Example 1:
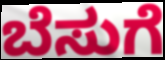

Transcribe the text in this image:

ಬೆಸುಗೆ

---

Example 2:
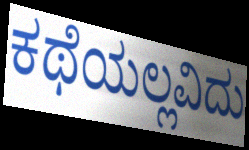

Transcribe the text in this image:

ಕಥೆಯಲ್ಲವಿದು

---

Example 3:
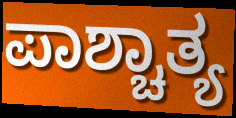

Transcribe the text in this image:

ಪಾಶ್ಚಾತ್ಯ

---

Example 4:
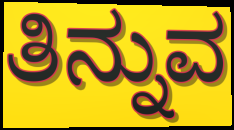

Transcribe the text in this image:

ತಿನ್ನುವ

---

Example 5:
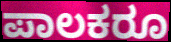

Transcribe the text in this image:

ಪಾಲಕರೂ